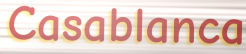
Casablanca